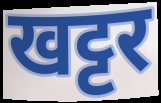
खट्टर